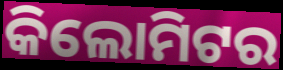
କିଲୋମିଟର